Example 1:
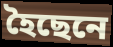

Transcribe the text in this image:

হৈছেনে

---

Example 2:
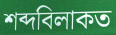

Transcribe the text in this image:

শব্দবিলাকত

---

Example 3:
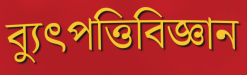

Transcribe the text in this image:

ব্যুৎপত্তিবিজ্ঞান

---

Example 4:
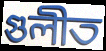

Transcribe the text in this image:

গুলীত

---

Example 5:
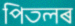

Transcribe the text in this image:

পিতলৰ